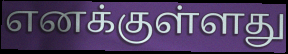
எனக்குள்ளது